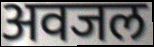
अवजल